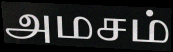
அமசம்